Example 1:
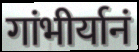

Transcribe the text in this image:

गांभीर्यानं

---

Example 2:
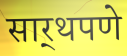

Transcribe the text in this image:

सार्थपणे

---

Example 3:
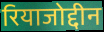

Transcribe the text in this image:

रियाजोद्दीन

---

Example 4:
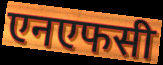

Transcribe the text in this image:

एनएफसी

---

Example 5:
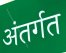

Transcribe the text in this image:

अंतर्गत